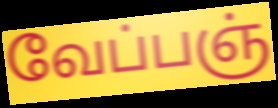
வேப்பஞ்